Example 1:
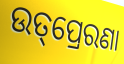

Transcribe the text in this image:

ଉତ୍‌ପ୍ରେରଣା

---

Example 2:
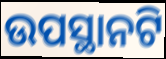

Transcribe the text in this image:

ଉପସ୍ଥାନଟି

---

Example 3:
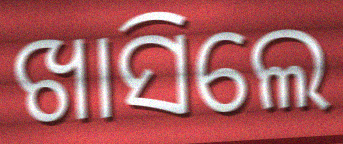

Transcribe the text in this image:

ଖାସିଲେ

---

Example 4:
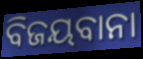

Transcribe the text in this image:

ବିଜୟବାନା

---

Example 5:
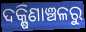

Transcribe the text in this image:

ଦକ୍ଷିଣାଞ୍ଚଳରୁ